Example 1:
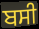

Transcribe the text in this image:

ਬਸੀ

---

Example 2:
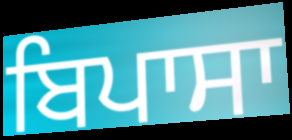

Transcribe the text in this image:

ਬਿਪਾਸਾ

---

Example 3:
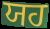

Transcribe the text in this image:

ਯਹ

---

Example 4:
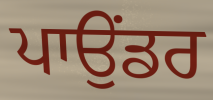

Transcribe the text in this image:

ਪਾਉਂਡਰ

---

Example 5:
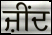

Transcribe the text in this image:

ਜ਼ੀਂਦ